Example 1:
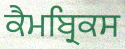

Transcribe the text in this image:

ਕੈਮਬ੍ਰਿਕਸ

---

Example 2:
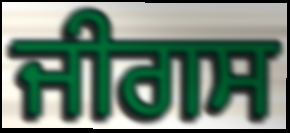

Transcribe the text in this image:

ਜੀਗਸ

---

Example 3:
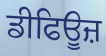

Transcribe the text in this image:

ਡੀਫਿਊਜ਼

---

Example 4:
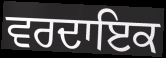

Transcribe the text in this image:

ਵਰਦਾਇਕ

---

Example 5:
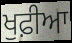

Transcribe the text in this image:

ਖੁਫ਼ੀਆ